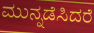
ಮುನ್ನಡೆಸಿದರೆ